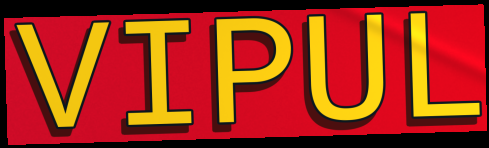
VIPUL